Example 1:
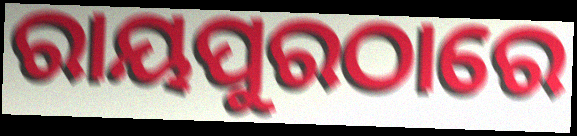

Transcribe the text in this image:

ରାୟପୁରଠାରେ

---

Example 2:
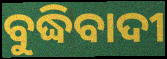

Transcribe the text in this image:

ବୁଦ୍ଧିବାଦୀ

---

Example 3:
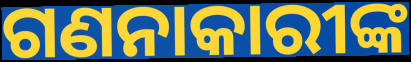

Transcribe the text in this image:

ଗଣନାକାରୀଙ୍କ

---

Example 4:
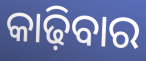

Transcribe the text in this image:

କାଢ଼ିବାର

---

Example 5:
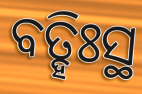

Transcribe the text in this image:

ବତ୍ହିଃସ୍ଥ